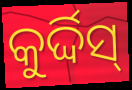
କୁର୍ଦ୍ଦିସ୍